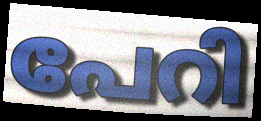
പേറി